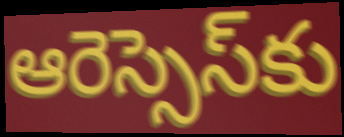
ఆరెస్సెస్‌కు